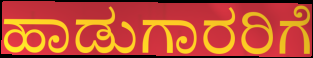
ಹಾಡುಗಾರರಿಗೆ